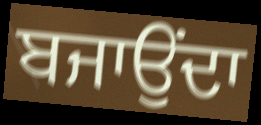
ਬਜਾਉਂਦਾ